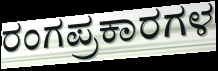
ರಂಗಪ್ರಕಾರಗಳ